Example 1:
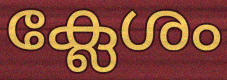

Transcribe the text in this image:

ക്ലേശം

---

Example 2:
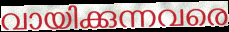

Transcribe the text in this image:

വായിക്കുന്നവരെ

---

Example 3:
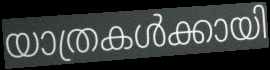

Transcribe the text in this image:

യാത്രകൾക്കായി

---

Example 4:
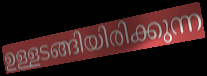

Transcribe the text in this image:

ഉള്ളടങ്ങിയിരിക്കുന്ന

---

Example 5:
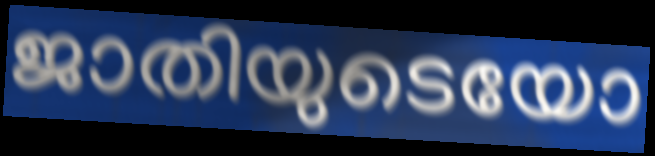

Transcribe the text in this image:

ജാതിയുടെയോ